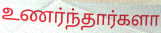
உணர்ந்தார்களா